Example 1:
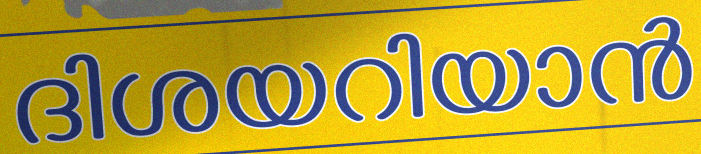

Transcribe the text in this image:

ദിശയറിയാൻ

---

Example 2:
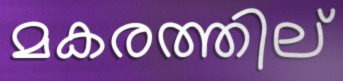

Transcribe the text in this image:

മകരത്തില്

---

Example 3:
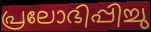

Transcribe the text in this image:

പ്രലോഭിപ്പിച്ചു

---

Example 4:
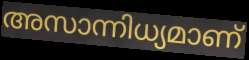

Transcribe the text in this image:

അസാന്നിധ്യമാണ്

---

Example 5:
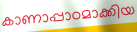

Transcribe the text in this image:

കാണാപ്പാഠമാക്കിയ